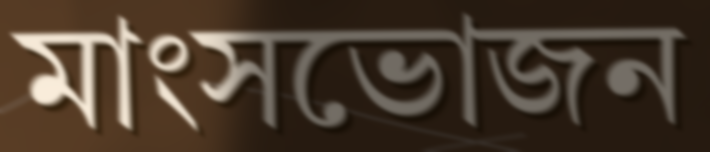
মাংসভোজন